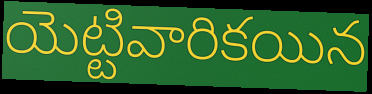
యెట్టివారికయిన